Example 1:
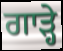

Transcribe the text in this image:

ਗਾੜ੍ਹੇ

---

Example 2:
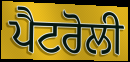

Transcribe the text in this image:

ਪੈਟਰੋਲੀ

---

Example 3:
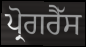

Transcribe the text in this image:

ਪ੍ਰੋਗਰੈੱਸ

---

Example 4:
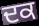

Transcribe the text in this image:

ਦਕ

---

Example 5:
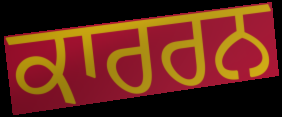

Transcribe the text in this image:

ਕਾਰਰਨ